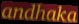
andhaka